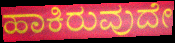
ಹಾಕಿರುವುದೇ